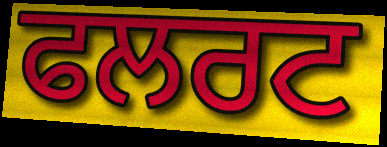
ਫਲਰਟ